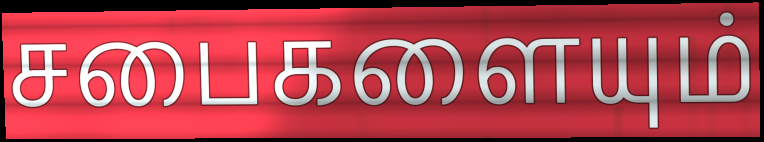
சபைகளையும்